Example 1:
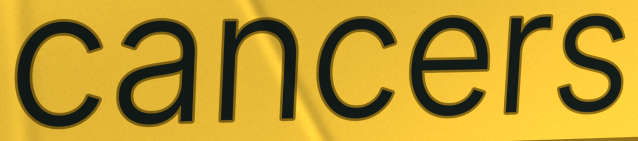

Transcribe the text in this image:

cancers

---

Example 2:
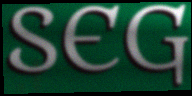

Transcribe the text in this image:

SEG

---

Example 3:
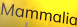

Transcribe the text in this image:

Mammalia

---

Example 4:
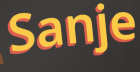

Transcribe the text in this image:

Sanje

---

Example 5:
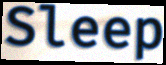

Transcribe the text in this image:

Sleep